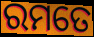
ରମତେ